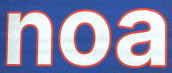
noa